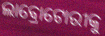
ଲାବ୍ରୋଟୋରୀକୁ